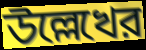
উল্লেখের